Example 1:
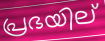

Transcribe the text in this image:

പ്രഭയില്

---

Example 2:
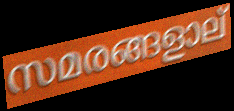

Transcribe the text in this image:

സമരങ്ങളാല്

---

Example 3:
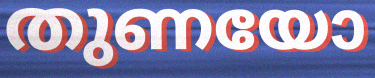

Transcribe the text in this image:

തുണയോ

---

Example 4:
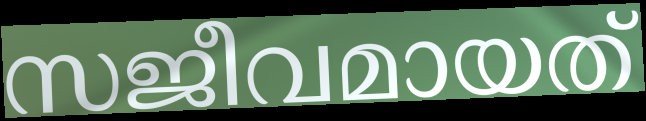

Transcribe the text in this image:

സജീവമായത്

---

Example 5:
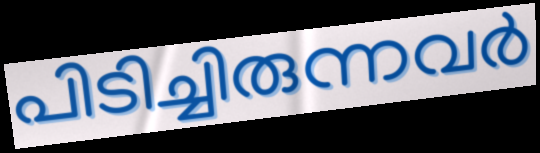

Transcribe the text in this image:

പിടിച്ചിരുന്നവർ